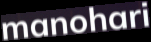
manohari